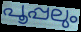
പൂപ്പലും